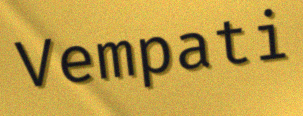
Vempati